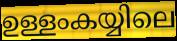
ഉള്ളംകയ്യിലെ